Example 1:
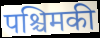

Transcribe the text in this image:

पश्चिमकी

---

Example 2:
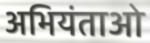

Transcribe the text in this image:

अभियंताओ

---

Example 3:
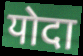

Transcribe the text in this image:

योदा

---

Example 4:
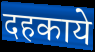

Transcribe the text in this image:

दहकाये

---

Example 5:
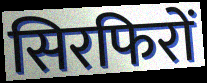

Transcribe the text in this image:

सिरफिरों